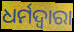
ଧର୍ମଦ୍ଵାରା